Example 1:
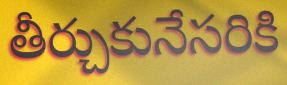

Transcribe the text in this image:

తీర్చుకునేసరికి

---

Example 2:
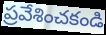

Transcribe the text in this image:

ప్రవేశించకండి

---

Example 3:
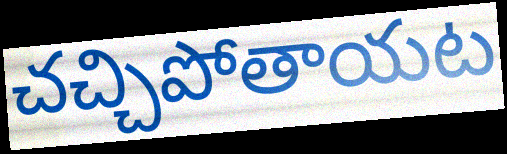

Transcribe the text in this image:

చచ్చిపోతాయట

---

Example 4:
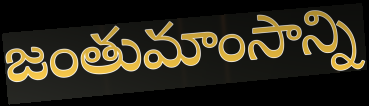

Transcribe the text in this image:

జంతుమాంసాన్ని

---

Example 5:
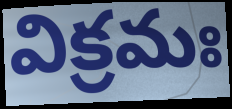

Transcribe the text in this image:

విక్రమః